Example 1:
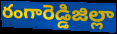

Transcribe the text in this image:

రంగారెడ్డిజిల్లా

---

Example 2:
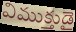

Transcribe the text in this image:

విముక్తుడై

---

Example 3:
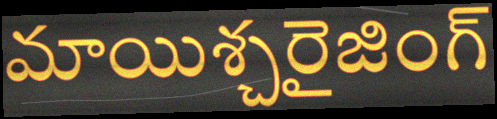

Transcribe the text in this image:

మాయిశ్చరైజింగ్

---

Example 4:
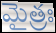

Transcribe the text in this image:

మైత్రః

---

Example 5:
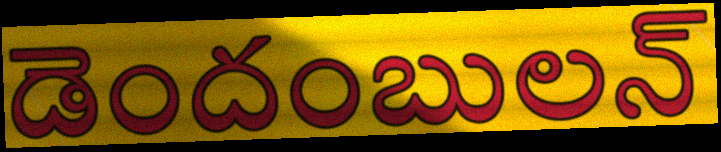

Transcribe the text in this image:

డెందంబులన్